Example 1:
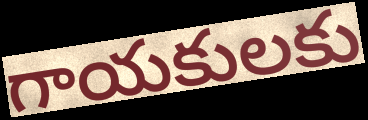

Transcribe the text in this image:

గాయకులకు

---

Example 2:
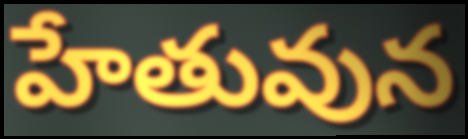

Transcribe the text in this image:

హేతువున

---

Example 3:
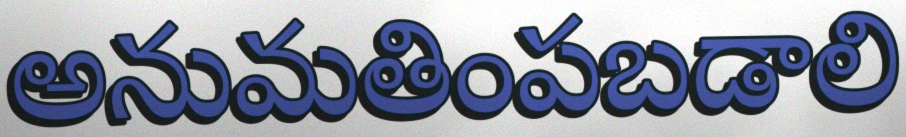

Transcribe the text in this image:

అనుమతింపబడాలి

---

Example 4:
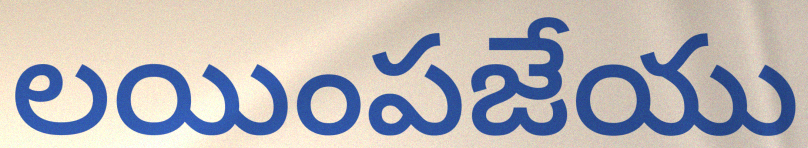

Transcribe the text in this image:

లయింపజేయు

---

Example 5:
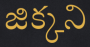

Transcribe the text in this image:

జిక్కని